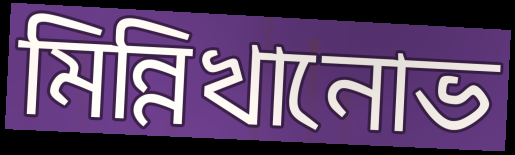
মিন্নিখানোভ